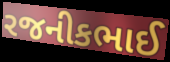
રજનીકભાઈ